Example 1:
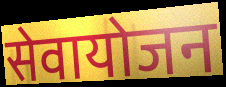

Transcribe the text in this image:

सेवायोजन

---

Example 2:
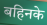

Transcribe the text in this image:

बहिनके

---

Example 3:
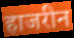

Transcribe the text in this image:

हाजरीन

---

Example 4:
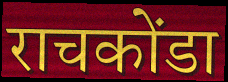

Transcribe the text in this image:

राचकोंडा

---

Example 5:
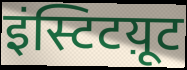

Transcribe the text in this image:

इंस्टिटय़ूट